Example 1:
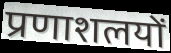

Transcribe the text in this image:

प्रणाशलयों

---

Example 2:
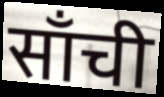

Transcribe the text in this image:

साँची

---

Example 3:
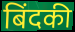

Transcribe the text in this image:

बिंदकी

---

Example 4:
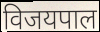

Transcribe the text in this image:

विजयपाल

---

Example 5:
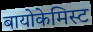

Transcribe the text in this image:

बायोकेमिस्ट